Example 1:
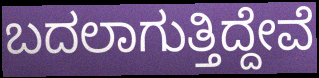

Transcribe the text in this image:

ಬದಲಾಗುತ್ತಿದ್ದೇವೆ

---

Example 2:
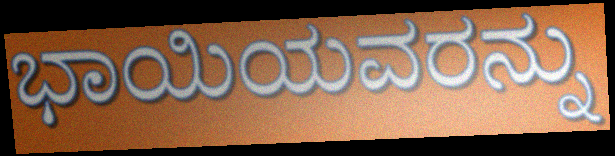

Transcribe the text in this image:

ಭಾಯಿಯವರನ್ನು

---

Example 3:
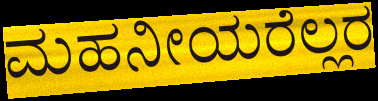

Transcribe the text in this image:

ಮಹನೀಯರೆಲ್ಲರ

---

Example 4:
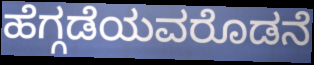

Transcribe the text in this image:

ಹೆಗ್ಗಡೆಯವರೊಡನೆ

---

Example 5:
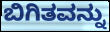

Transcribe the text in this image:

ಬಿಗಿತವನ್ನು